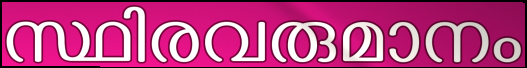
സ്ഥിരവരുമാനം